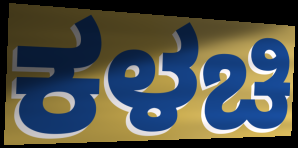
ಕಳಚಿ